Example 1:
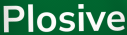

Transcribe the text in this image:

Plosive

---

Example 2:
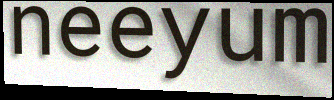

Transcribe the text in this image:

neeyum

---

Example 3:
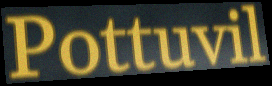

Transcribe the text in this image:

Pottuvil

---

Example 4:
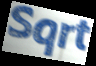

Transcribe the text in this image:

Sqrt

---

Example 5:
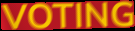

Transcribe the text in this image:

VOTING